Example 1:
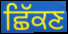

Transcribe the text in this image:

ਛਿੱਕਣ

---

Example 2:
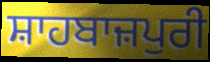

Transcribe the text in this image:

ਸ਼ਾਹਬਾਜ਼ਪੁਰੀ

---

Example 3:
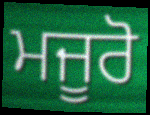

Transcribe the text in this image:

ਮਜੂਰੋ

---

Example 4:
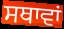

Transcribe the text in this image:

ਸਥਾਵਾਂ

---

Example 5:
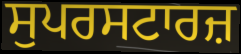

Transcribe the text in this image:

ਸੁਪਰਸਟਾਰਜ਼